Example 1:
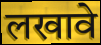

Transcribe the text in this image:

लखावे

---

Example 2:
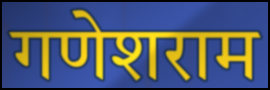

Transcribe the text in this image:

गणेशराम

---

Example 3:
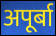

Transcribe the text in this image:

अपूर्बा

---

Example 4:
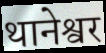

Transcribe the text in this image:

थानेश्वर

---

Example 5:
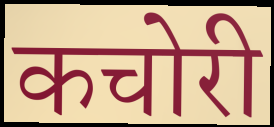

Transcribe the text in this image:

कचोरी